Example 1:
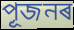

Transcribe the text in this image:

পূজনৰ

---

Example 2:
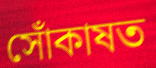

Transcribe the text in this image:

সোঁকাষত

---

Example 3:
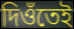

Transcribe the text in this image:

দিওঁতেই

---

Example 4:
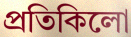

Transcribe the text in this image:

প্ৰতিকিলো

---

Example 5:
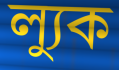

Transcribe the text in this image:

ল্যুক